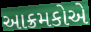
આક્રમકોએ